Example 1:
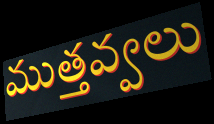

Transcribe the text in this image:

ముత్తవ్వలు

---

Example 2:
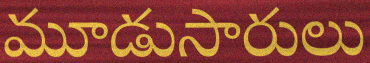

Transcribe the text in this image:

మూడుసారులు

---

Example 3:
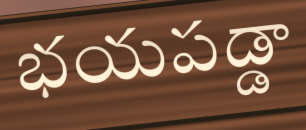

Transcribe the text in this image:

భయపడ్డా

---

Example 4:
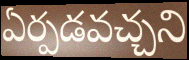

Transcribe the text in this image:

ఏర్పడవచ్చని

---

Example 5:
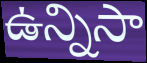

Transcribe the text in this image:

ఉన్నిసా